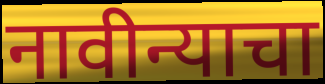
नावीन्याचा